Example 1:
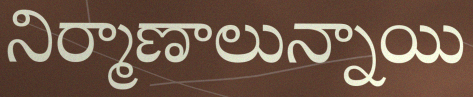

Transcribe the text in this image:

నిర్మాణాలున్నాయి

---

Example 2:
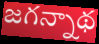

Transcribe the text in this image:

జగన్నాథ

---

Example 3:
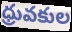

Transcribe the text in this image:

ధ్రువకుల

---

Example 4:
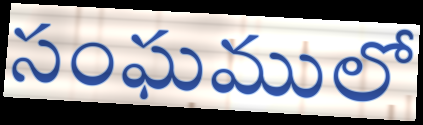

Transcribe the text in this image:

సంఘములో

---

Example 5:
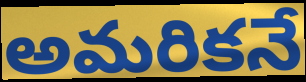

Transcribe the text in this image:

అమరికనే